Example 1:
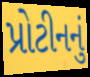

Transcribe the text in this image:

પ્રોટીનનું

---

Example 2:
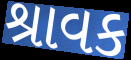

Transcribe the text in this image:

શ્રાવક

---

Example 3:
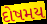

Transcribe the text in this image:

દોષમય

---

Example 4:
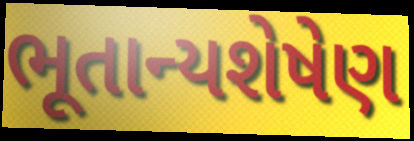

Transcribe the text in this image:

ભૂતાન્યશેષેણ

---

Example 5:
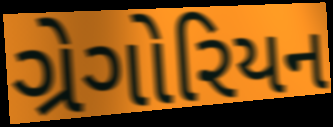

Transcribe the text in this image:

ગ્રેગોરિયન